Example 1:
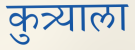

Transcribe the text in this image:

कुत्र्याला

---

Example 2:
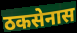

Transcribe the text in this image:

ठकसेनास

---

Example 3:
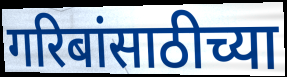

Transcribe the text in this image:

गरिबांसाठीच्या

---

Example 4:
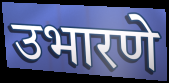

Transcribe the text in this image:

उभारणे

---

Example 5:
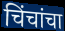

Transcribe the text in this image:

चिंचांचा